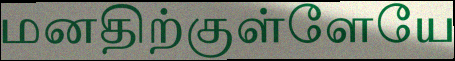
மனதிற்குள்ளேயே